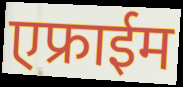
एफ्राईम